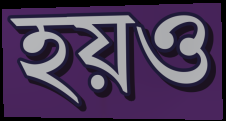
হয়ও